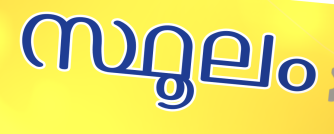
സ്ഥൂലം